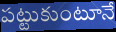
పట్టుకుంటూనే